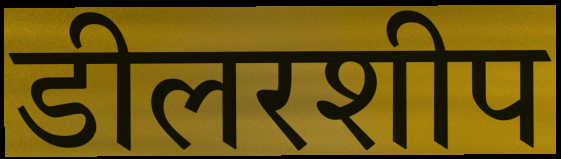
डीलरशीप